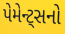
પેમેન્ટ્સનો